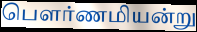
பெளர்ணமியன்று